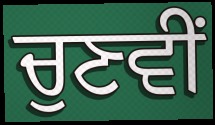
ਚੁਣਵੀਂ